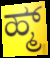
ಹ್ಮ್